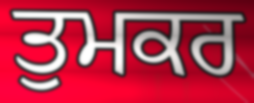
ਤੁਮਕਰ